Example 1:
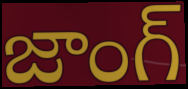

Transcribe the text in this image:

జాంగ్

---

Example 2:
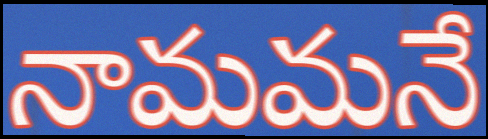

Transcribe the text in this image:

నామమనే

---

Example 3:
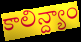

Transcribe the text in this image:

కాలిన్ద్యాం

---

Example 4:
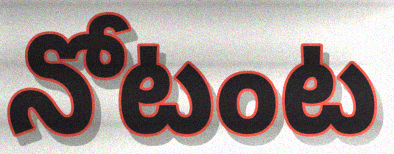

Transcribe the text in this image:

నోటంట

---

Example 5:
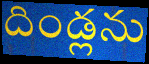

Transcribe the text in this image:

దిండ్లను